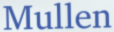
Mullen